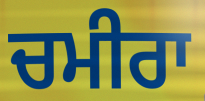
ਚਮੀਰਾ